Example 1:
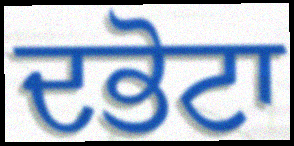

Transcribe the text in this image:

ਦਭੋਟਾ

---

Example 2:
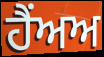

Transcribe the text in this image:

ਹੈਂਅਅ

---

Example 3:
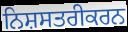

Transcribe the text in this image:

ਨਿਸ਼ਸਤਰੀਕਰਨ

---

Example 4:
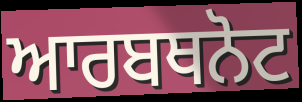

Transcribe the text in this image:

ਆਰਬਥਨੋਟ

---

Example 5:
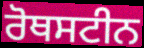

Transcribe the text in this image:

ਰੋਥਸਟੀਨ